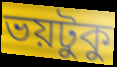
ভয়টুকু